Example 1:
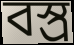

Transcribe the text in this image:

বস্ত্ৰ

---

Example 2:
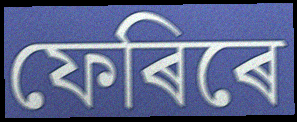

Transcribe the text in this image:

ফেৰিৰে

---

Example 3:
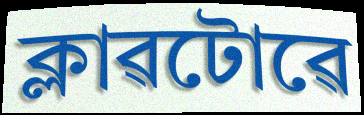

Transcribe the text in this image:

ক্লাৱটোৱে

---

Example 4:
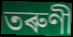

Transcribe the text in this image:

তৰুণী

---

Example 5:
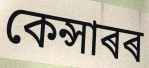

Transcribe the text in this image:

কেন্সাৰৰ